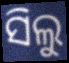
ସିଲୁ